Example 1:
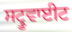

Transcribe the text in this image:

ਸਟ੍ਰੂਵਾਈਟ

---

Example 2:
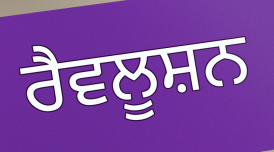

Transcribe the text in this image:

ਰੈਵਲੂਸ਼ਨ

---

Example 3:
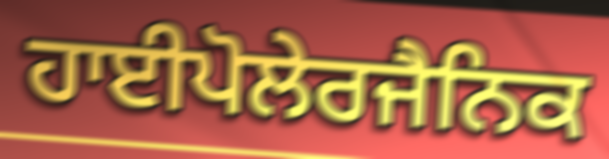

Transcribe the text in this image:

ਹਾਈਪੋਲੇਰਜੈਨਿਕ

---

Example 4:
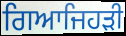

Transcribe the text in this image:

ਗਿਆਜਿਹੜੀ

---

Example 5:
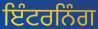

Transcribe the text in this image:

ਇੰਟਰਨਿੰਗ